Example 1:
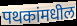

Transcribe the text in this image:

पथकांमधील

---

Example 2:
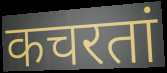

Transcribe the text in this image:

कचरतां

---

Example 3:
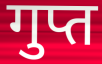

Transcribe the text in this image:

गुप्त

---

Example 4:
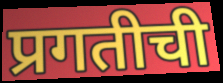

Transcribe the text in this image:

प्रगतीची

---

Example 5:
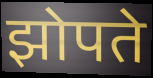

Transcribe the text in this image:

झोपते